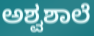
ಅಶ್ವಶಾಲೆ